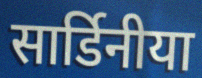
सार्डिनीया